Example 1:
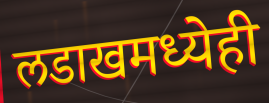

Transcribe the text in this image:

लडाखमध्येही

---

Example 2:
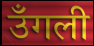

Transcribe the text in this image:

उँगली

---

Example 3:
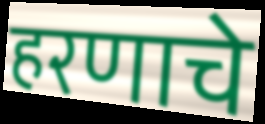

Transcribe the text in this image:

हरणाचे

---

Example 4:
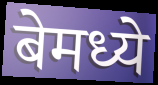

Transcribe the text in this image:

बेमध्ये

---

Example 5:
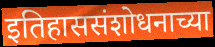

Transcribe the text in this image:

इतिहाससंशोधनाच्या